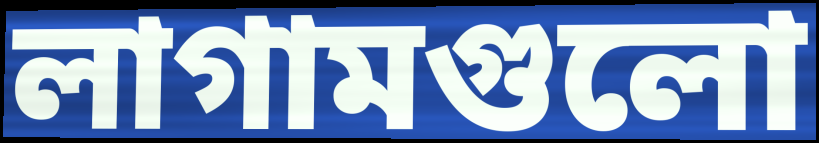
লাগামগুলো